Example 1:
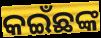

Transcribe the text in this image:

କଇଁଛଙ୍କ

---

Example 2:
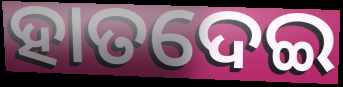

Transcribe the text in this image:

ହାତଦେଇ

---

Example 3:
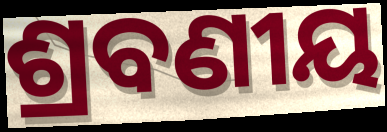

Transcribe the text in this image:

ଶ୍ରବଣୀୟ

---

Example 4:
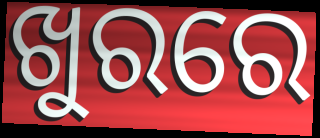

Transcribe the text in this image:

ଖୁରରେ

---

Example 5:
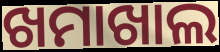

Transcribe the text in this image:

ଖମାଖାଲ